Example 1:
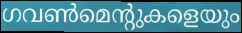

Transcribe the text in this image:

ഗവൺമെന്റുകളെയും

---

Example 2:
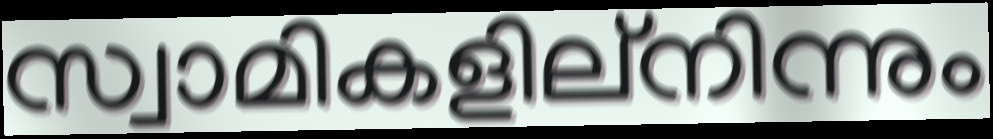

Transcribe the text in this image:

സ്വാമികളില്നിന്നും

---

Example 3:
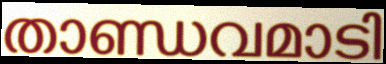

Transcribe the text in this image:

താണ്ഡവമാടി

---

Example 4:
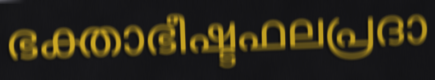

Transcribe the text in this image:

ഭക്താഭീഷ്ടഫലപ്രദാ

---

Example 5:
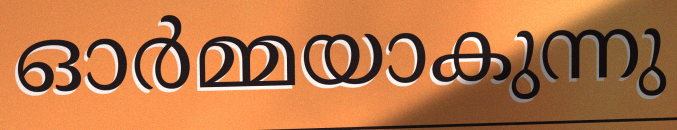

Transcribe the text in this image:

ഓർമ്മയാകുന്നു